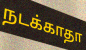
நடக்காதா